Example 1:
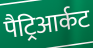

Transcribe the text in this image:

पैट्रिआर्कट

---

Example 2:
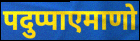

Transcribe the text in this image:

पदुप्पाएमाणो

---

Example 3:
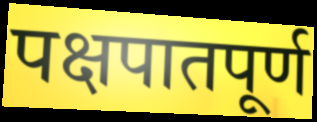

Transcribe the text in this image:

पक्षपातपूर्ण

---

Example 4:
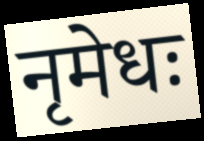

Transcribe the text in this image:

नृमेधः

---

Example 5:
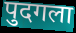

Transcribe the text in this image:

पुदगला